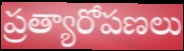
ప్రత్యారోపణలు